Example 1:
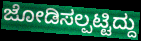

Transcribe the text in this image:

ಜೋಡಿಸಲ್ಪಟ್ಟಿದ್ದು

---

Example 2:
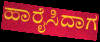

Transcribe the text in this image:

ಹಾರೈಸಿದಾಗ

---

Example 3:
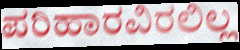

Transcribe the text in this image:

ಪರಿಹಾರವಿರಲಿಲ್ಲ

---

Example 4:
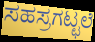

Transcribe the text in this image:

ಸಹಸ್ರಗಟ್ಟಲೆ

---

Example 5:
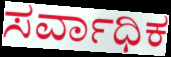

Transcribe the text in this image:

ಸರ್ವಾಧಿಕ